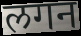
लगन